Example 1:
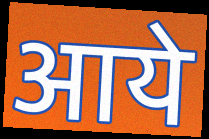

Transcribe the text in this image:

आये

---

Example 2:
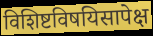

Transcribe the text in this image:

विशिष्टविषयिसापेक्ष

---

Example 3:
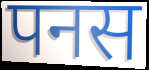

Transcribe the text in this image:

पनस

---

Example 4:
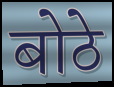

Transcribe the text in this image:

बोठे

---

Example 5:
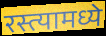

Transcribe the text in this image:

रस्त्यामध्ये